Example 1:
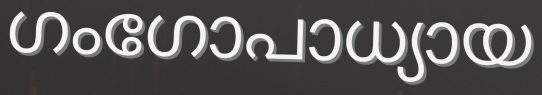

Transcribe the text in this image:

ഗംഗോപാധ്യായ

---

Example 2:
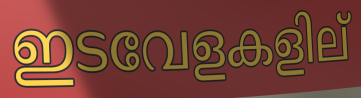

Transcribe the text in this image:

ഇടവേളകളില്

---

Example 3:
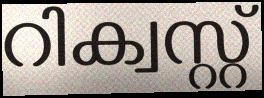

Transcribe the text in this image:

റിക്വസ്റ്റ്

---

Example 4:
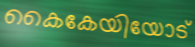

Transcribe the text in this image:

കൈകേയിയോട്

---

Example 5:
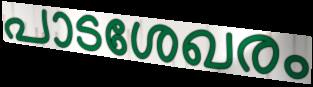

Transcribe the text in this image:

പാടശേഖരം